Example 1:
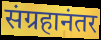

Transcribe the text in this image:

संग्रहानंतर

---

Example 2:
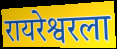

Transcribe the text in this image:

रायरेश्वरला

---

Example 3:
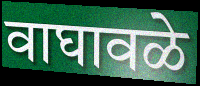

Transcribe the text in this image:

वाघावळे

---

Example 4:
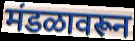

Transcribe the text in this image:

मंडळावरून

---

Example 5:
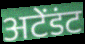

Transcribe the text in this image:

अटेंडंट